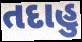
તદાહુ